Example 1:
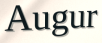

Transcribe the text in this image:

Augur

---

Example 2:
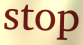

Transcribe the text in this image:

stop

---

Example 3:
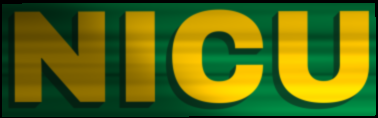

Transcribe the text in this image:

NICU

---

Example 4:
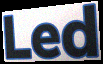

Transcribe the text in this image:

Led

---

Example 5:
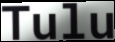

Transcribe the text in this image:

Tulu